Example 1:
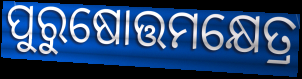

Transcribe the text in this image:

ପୁରୁଷୋତ୍ତମକ୍ଷେତ୍ର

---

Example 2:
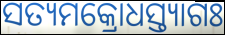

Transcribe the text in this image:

ସତ୍ୟମକ୍ରୋଧସ୍ତ୍ୟାଗଃ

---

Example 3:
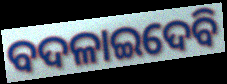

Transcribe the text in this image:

ବଦଳାଇଦେବି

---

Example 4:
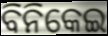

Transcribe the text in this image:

ବିନିକେଇ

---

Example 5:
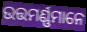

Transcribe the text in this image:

ଉତ୍ତମର୍ଣ୍ଣମାନେ